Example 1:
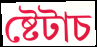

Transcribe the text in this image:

ষ্টেটাচ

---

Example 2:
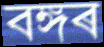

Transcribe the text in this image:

বঙ্গৰ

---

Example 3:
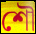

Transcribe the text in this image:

শৌ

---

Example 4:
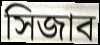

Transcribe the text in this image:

সিজাব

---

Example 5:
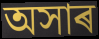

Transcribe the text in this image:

অসাৰ